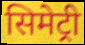
सिमेट्री